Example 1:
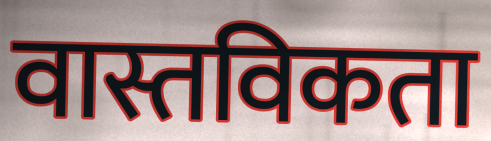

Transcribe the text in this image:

वास्तविकता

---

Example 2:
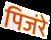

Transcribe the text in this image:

पिजंरे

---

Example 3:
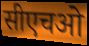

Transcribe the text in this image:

सीएचओ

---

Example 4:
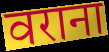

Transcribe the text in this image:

वराना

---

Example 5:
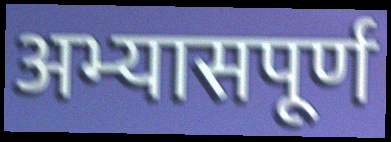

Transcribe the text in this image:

अभ्यासपूर्ण